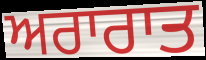
ਅਰਾਰਾਤ